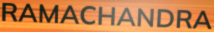
RAMACHANDRA